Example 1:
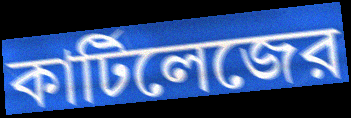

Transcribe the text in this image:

কার্টিলেজের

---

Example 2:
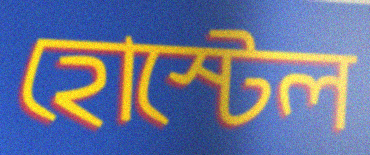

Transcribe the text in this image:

হোস্টেল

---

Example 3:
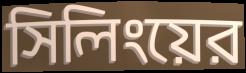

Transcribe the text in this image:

সিলিংয়ের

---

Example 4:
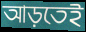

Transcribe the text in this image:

আড়তেই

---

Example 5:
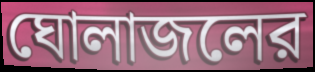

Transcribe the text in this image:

ঘোলাজলের